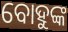
ବୋହୁଙ୍କ